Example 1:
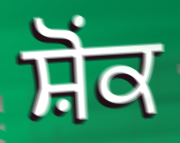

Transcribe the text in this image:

ਸ਼ੋਂਕ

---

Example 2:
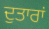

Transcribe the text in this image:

ਦੁਤਾਰਾਂ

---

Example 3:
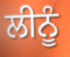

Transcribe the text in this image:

ਲੀਨੂੰ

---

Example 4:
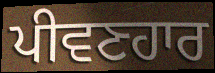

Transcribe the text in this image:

ਪੀਵਣਹਾਰ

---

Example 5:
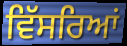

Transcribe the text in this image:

ਵਿੱਸਰਿਆਂ